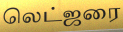
லெட்ஜரை